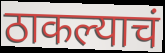
ठाकल्याचं